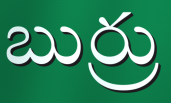
బుర్రు